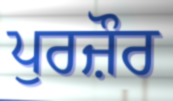
ਪੁਰਜ਼ੌਰ